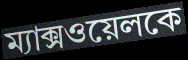
ম্যাক্সওয়েলকে